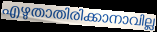
എഴുതാതിരിക്കാനാവില്ല